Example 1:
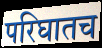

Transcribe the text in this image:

परिघातच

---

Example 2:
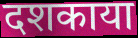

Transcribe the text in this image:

दशकाया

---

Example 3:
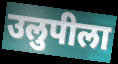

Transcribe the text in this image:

उलुपीला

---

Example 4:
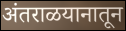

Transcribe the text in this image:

अंतराळयानातून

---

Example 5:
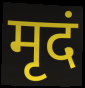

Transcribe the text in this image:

मृदं